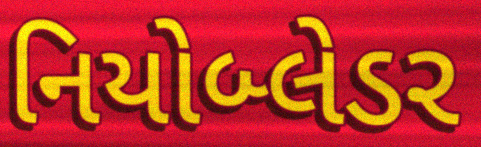
નિયોબ્લેડર